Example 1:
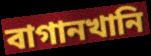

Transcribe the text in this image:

বাগানখানি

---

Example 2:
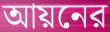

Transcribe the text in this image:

আয়নের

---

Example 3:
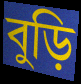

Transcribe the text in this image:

বুড়ি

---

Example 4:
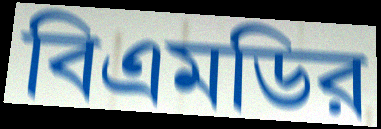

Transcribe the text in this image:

বিএমডির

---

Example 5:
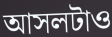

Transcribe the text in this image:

আসলটাও